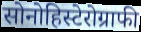
सोनोहिस्टेरोग्राफी